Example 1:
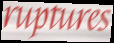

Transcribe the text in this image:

ruptures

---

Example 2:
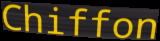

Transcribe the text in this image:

Chiffon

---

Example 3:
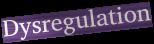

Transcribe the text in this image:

Dysregulation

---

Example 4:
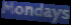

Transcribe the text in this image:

Mondays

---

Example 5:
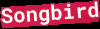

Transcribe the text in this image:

Songbird